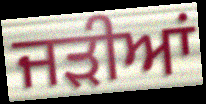
ਜੜੀਆਂ